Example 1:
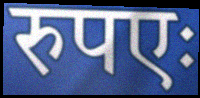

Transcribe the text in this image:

रुपएः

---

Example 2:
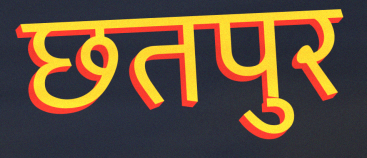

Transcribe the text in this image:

छतपुर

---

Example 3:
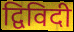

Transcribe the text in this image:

द्विविदी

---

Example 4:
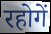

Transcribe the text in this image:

रहोगें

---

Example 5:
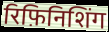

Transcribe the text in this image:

रिफ़िनिशिंग